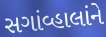
સગાંવ્હાલાંને